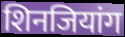
शिनजियांग